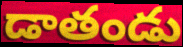
డాతండు